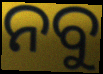
ନବୁ